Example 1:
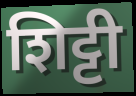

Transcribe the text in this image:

शिट्टी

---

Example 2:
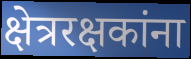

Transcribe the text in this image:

क्षेत्ररक्षकांना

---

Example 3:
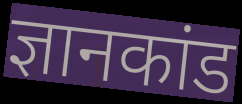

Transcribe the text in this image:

ज्ञानकांड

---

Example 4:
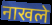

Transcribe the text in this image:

नाखले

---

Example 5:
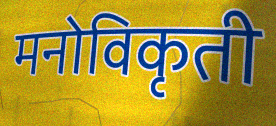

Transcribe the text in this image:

मनोविकृती